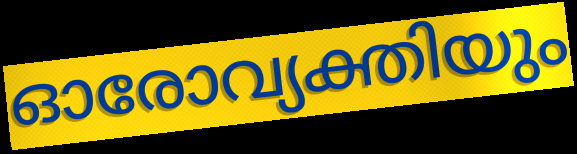
ഓരോവ്യക്തിയും